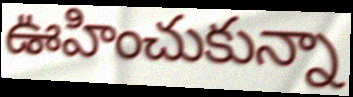
ఊహించుకున్నా